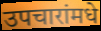
उपचारांमधे